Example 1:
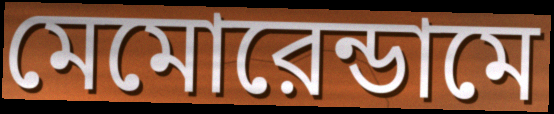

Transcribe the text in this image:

মেমোরেন্ডামে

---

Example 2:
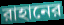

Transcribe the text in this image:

রাহানের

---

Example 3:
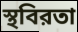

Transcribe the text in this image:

স্থবিরতা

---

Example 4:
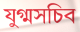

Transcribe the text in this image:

যুগ্মসচিব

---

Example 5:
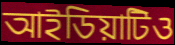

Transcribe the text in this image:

আইডিয়াটিও